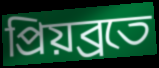
প্ৰিয়ব্ৰতে